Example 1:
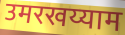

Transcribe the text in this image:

उमरखय्याम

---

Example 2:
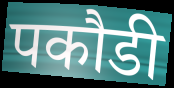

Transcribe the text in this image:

पकौडी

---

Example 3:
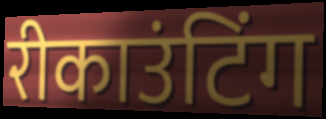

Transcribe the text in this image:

रीकाउंटिंग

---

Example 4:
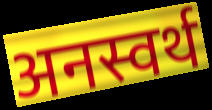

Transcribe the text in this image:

अनस्वर्थ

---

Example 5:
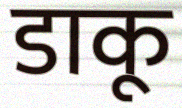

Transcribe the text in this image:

डाकू